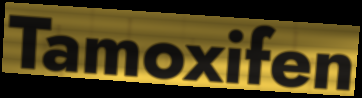
Tamoxifen